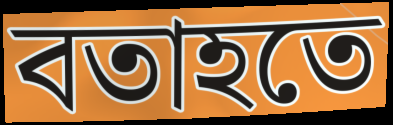
বতাহতে